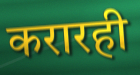
करारही